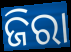
ଜିରା